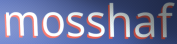
mosshaf